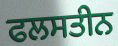
ਫਲਸਤੀਨ